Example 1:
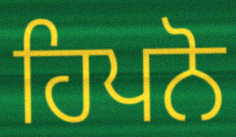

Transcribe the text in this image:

ਹਿਪਨੋ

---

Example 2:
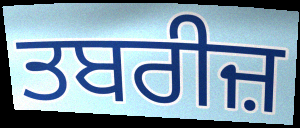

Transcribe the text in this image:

ਤਬਰੀਜ਼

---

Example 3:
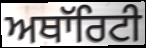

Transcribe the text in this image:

ਅਥਾੱਰਿਟੀ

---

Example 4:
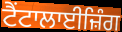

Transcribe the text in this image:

ਟੈਂਟਾਲਾਈਜ਼ਿੰਗ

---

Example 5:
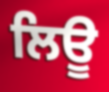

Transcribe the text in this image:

ਲਿਊ